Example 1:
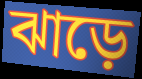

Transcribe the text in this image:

ঝাড়ে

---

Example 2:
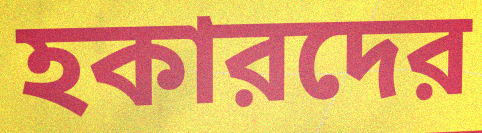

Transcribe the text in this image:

হকারদের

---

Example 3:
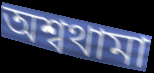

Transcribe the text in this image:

অশ্বথামা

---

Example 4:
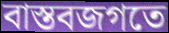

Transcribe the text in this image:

বাস্তবজগতে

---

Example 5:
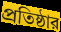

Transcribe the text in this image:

প্রতিষ্ঠার